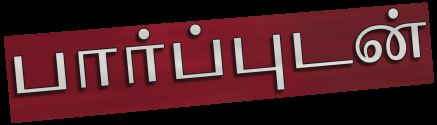
பார்ப்புடன்